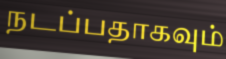
நடப்பதாகவும்